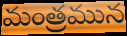
మంత్రమున